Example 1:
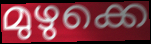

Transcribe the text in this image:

മുഴുക്കെ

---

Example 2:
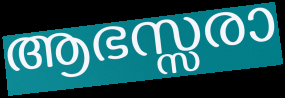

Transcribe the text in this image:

ആഭസ്സരാ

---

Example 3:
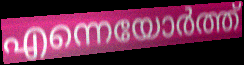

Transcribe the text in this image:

എന്നെയോർത്ത്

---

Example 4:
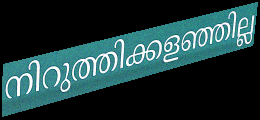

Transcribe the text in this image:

നിറുത്തിക്കളഞ്ഞില്ല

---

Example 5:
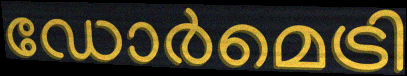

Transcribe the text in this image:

ഡോർമെട്രി